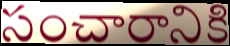
సంచారానికి